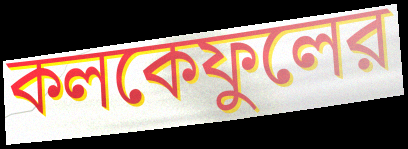
কলকেফুলের